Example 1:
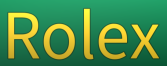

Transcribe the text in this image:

Rolex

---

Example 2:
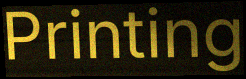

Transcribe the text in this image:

Printing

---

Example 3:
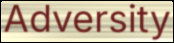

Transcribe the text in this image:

Adversity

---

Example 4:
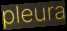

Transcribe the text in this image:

pleura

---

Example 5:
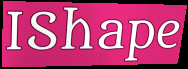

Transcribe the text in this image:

IShape